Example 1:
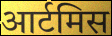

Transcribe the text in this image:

आर्टमिस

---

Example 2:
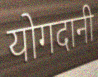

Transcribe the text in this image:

योगदानी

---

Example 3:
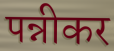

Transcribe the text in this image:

पन्नीकर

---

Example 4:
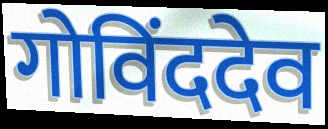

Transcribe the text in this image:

गोविंददेव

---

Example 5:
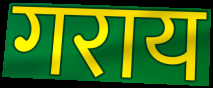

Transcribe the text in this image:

गराय